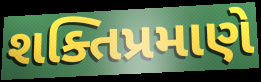
શક્તિપ્રમાણે